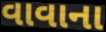
વાવાના